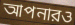
আপনারও